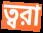
ত্বরা